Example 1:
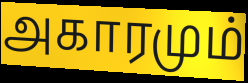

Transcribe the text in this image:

அகாரமும்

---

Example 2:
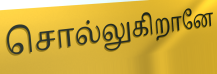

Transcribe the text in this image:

சொல்லுகிறானே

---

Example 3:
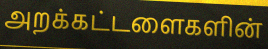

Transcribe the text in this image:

அறக்கட்டளைகளின்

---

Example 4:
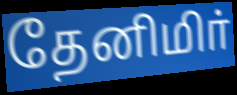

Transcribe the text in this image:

தேனிமிர்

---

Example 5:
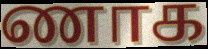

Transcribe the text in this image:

ணாக